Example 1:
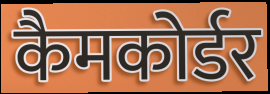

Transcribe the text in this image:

कैमकोर्डर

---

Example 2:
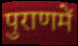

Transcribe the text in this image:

पुराणमें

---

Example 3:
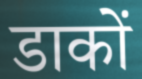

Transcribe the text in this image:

डाकों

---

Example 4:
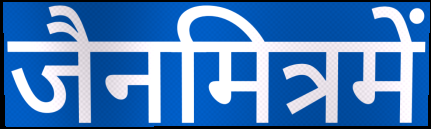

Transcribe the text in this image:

जैनमित्रमें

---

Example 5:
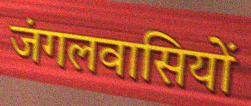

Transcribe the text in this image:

जंगलवासियों